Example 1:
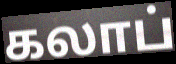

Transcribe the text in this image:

கலாப்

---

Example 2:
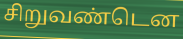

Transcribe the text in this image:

சிறுவண்டென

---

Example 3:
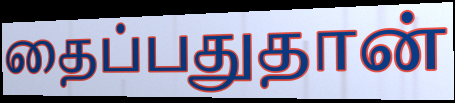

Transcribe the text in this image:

தைப்பதுதான்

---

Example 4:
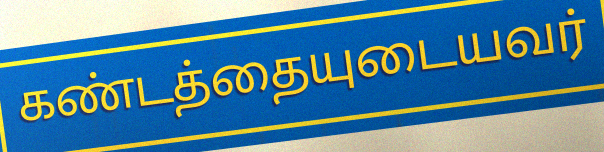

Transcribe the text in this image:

கண்டத்தையுடையவர்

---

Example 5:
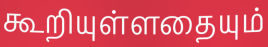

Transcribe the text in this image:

கூறியுள்ளதையும்